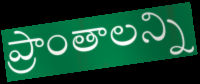
ప్రాంతాలన్ని